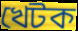
খেটক